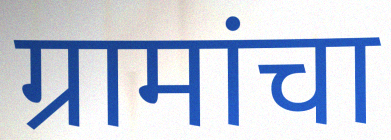
ग्रामांचा